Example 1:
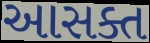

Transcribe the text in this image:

આસક્ત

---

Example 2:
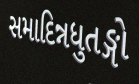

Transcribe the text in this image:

સમાદિન્નધુતઙ્ગો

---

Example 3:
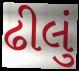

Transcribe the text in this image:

ઢીલું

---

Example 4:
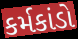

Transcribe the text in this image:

કર્મકાંડો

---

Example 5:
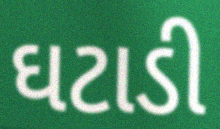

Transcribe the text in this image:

ઘટાડી